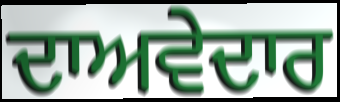
ਦਾਅਵੇਦਾਰ